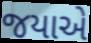
જયાએ